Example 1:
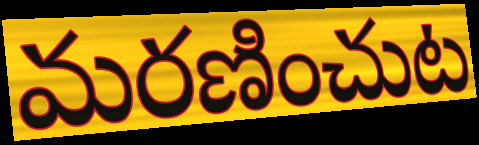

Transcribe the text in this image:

మరణించుట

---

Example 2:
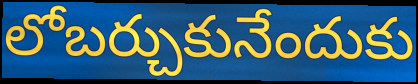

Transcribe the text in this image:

లోబర్చుకునేందుకు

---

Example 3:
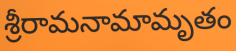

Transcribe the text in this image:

శ్రీరామనామామృతం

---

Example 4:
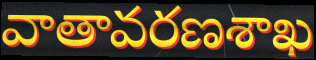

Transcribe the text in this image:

వాతావరణశాఖ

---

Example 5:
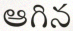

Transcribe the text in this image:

ఆగిన